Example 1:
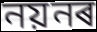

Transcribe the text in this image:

নয়নৰ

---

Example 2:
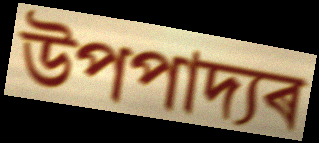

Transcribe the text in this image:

উপপাদ্যৰ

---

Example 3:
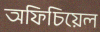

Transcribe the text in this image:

অফিচিয়েল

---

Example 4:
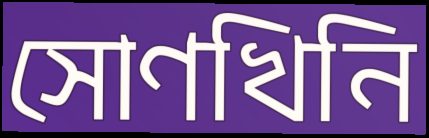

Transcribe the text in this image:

সোণখিনি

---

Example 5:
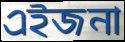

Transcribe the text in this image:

এইজনা